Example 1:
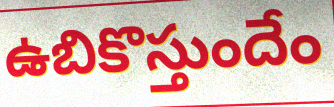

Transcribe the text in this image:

ఉబికొస్తుందేం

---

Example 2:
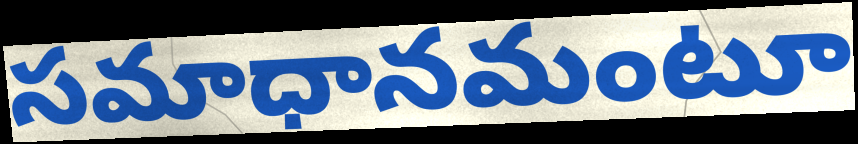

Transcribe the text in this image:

సమాధానమంటూ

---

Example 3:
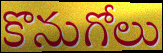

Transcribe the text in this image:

కొనుగోలు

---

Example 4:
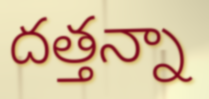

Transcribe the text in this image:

దత్తన్నా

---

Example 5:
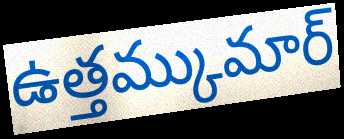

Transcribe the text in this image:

ఉత్తమ్కుమార్